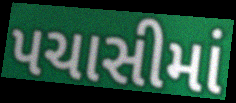
પચાસીમાં